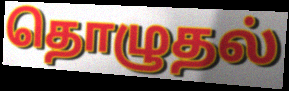
தொழுதல்